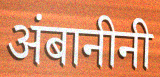
अंबानीनी